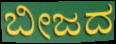
ಬೀಜದ